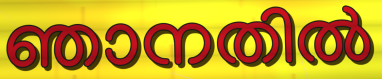
ഞാനതിൽ